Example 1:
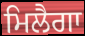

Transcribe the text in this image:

ਮਿਲੈਗਾ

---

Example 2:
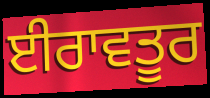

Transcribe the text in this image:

ਈਰਾਵਤੂਰ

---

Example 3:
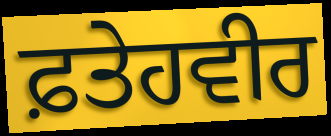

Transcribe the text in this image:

ਫ਼ਤੇਹਵੀਰ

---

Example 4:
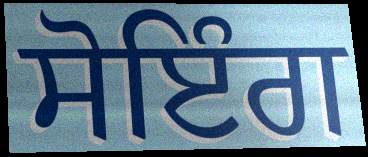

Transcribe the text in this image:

ਸੋਇੰਗ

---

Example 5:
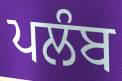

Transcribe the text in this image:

ਪਲੰਬ